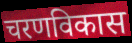
चरणविकास